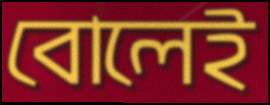
বোলেই